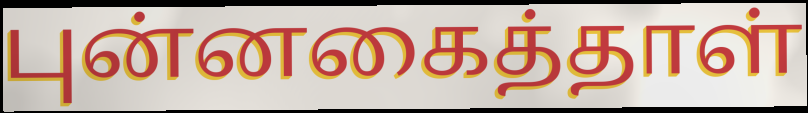
புன்னகைத்தாள்